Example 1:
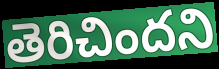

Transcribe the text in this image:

తెరిచిందని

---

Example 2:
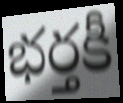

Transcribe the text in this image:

భర్తకీ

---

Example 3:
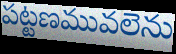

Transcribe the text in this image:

పట్టణమువలెను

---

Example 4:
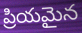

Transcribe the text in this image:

ప్రియమైన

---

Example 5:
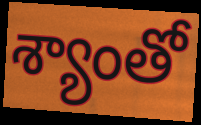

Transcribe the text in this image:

శ్యాంతో